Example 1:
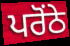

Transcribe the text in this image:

ਪਰੋਂਠੇ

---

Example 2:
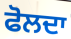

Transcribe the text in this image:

ਫੋਲਦਾ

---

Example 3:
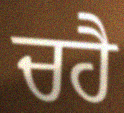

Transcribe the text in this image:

ਚਹੈ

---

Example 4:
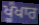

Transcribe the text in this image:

ਖੂੰਖਾਰ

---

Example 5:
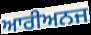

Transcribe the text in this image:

ਆਰੀਅਨਜ